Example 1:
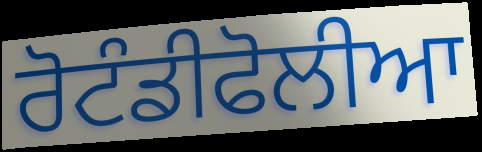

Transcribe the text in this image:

ਰੋਟੰਡੀਫੋਲੀਆ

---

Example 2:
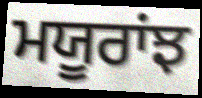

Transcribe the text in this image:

ਮਯੂਰਾਂਝ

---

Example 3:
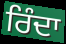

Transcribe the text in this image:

ਰਿੰਦਾ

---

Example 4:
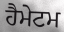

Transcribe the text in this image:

ਹੈਮੇਟਮ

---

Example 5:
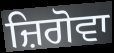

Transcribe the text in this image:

ਜ਼ਿਗੋਵਾ